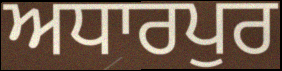
ਅਧਾਰਪੁਰ